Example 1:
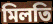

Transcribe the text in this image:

মিলতি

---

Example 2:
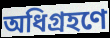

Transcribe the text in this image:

অধিগ্রহণে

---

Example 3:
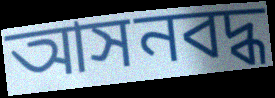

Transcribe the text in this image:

আসনবদ্ধ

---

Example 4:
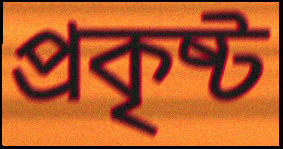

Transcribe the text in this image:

প্রকৃষ্ট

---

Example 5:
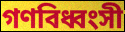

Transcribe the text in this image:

গণবিধ্বংসী